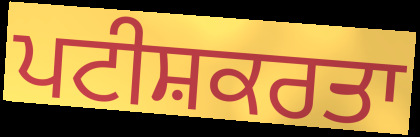
ਪਟੀਸ਼ਕਰਤਾ